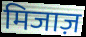
मिजाज़